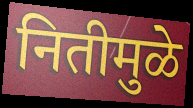
नितीमुळे